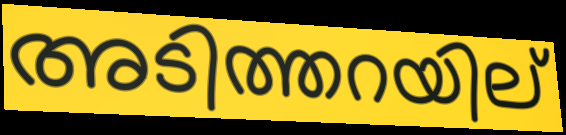
അടിത്തറയില്